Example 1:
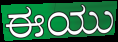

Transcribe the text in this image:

ಈಯು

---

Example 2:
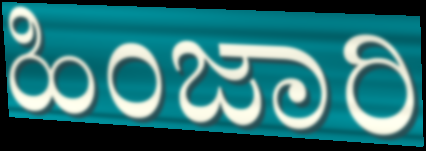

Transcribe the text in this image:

ಹಿಂಜಾರಿ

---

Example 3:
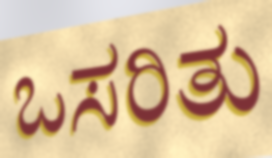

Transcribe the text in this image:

ಒಸರಿತು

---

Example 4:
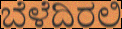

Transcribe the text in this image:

ಬೆಳೆದಿರಲಿ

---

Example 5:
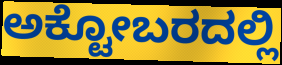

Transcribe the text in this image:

ಅಕ್ಟೋಬರದಲ್ಲಿ